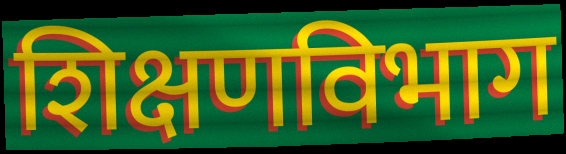
शिक्षणविभाग